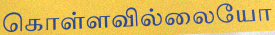
கொள்ளவில்லையோ